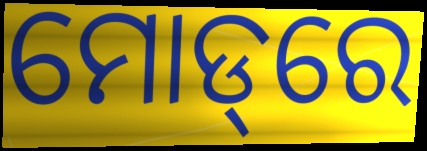
ମୋଡ୍‌ରେ